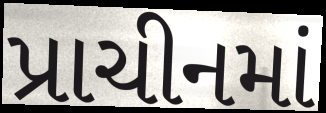
પ્રાચીનમાં